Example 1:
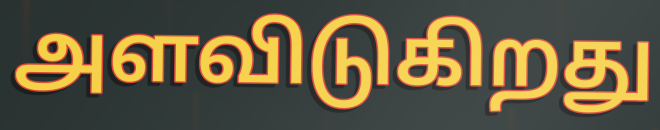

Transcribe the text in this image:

அளவிடுகிறது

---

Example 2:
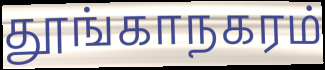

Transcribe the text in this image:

தூங்காநகரம்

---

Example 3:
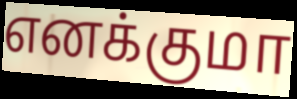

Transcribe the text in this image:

எனக்குமா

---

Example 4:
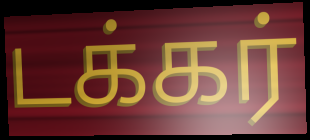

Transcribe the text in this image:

டக்கர்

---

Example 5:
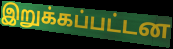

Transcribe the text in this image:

இறுக்கப்பட்டன